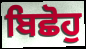
ਬਿਛੋਹੁ